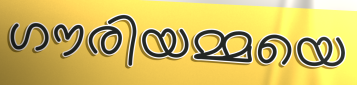
ഗൗരിയമ്മയെ